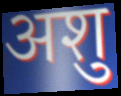
अशु